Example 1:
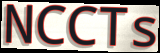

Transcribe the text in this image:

NCCTs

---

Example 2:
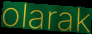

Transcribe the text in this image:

olarak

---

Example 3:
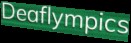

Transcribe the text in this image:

Deaflympics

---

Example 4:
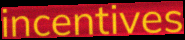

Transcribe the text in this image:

incentives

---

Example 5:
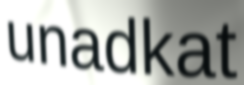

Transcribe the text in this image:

unadkat